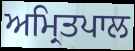
ਅਮ੍ਰਿਤਪਾਲ